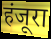
हंजूरा